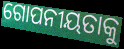
ଗୋପନୀୟତାକୁ